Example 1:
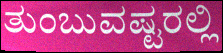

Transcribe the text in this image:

ತುಂಬುವಷ್ಟರಲ್ಲಿ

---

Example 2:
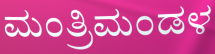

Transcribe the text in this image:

ಮಂತ್ರಿಮಂಡಳ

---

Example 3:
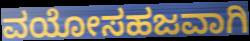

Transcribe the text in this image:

ವಯೋಸಹಜವಾಗಿ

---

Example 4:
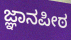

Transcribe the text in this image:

ಜ್ಞಾನಪೀಠ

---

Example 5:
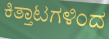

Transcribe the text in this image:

ಕಿತ್ತಾಟಗಳಿಂದ